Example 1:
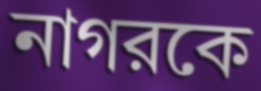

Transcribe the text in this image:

নাগরকে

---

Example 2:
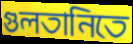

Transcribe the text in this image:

গুলতানিতে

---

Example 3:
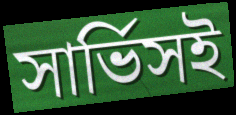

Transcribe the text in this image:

সার্ভিসই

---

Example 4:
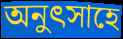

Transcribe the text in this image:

অনুৎসাহে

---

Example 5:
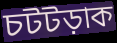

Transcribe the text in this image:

চটটড়াক